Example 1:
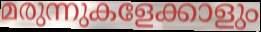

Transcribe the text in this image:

മരുന്നുകളേക്കാളും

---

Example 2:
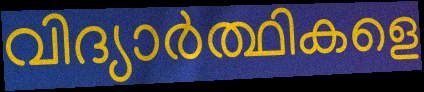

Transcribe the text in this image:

വിദ്യാർത്ഥികളെ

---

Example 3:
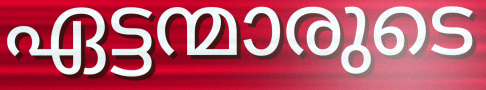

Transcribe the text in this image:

ഏട്ടന്മാരുടെ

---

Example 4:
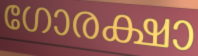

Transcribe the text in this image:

ഗോരക്ഷാ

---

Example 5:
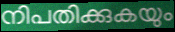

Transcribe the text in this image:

നിപതിക്കുകയും